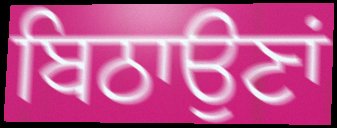
ਬਿਠਾਉਣਾਂ